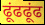
ढूंढढूंढ